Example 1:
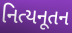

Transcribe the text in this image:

નિત્યનૂતન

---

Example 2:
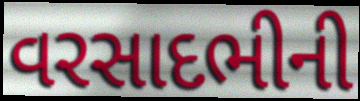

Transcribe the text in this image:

વરસાદભીની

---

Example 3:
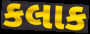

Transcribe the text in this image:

કલાક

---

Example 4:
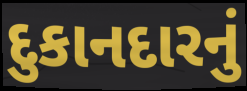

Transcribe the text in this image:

દુકાનદારનું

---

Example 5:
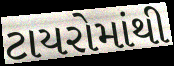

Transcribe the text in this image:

ટાયરોમાંથી